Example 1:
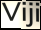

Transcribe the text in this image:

Viji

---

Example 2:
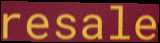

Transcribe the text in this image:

resale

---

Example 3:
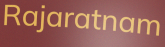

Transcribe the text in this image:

Rajaratnam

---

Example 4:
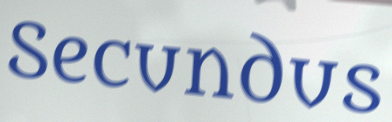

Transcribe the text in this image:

Secundus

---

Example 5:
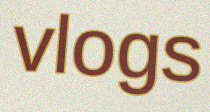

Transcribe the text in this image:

vlogs